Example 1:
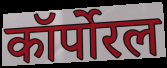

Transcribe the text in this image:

कॉर्पोरल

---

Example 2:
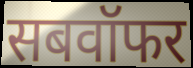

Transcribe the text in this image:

सबवॉफर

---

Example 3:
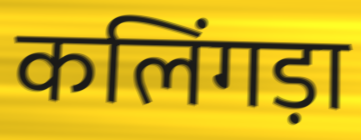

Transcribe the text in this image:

कलिंगड़ा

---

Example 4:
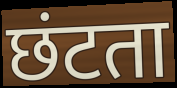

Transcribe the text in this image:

छंटता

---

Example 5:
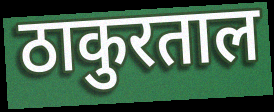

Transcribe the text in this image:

ठाकुरताल